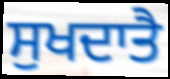
ਸੁਖਦਾਤੈ